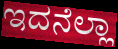
ಇದನೆಲ್ಲಾ